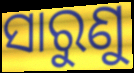
ସାରୁଣୁ